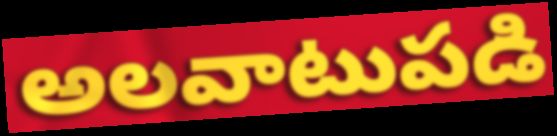
అలవాటుపడి